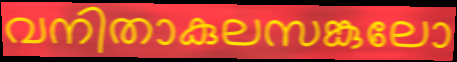
വനിതാകുലസങ്കുലോ